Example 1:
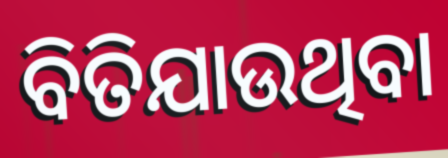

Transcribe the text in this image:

ବିତିଯାଉଥିବା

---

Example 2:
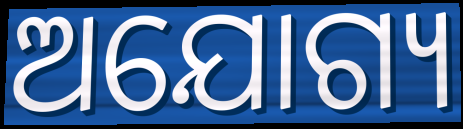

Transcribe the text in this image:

ଅଯୋଗ୍ୟ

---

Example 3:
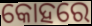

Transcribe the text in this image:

କୋହରେ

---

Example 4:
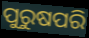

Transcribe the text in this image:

ପୁରୁଷପରି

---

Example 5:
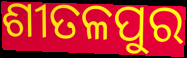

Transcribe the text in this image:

ଶୀତଳପୁର